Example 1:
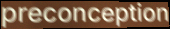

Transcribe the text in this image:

preconception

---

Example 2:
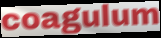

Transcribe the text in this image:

coagulum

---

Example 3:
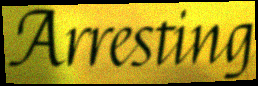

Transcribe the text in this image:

Arresting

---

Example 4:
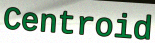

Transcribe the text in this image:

Centroid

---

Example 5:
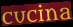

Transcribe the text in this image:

cucina